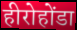
हीरोहोंडा